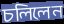
চলিলেন